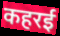
कहरई